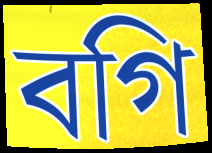
বগি